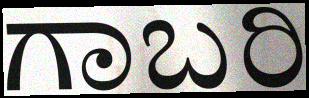
ಗಾಬರಿ